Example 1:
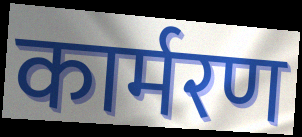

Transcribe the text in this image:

कार्मरण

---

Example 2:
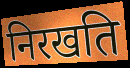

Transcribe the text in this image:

निरखति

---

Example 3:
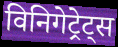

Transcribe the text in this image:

विनिगेट्रेट्स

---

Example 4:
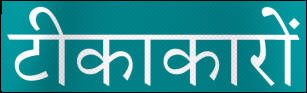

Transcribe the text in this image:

टीकाकारों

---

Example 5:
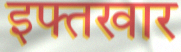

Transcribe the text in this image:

इफ्तखार